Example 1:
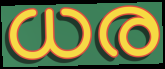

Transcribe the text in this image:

ധര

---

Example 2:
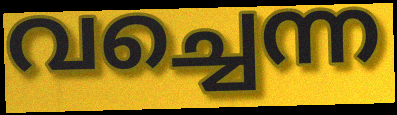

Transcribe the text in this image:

വച്ചെന്ന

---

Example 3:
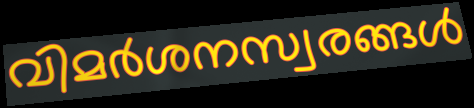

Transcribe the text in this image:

വിമർശനസ്വരങ്ങൾ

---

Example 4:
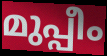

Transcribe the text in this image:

മുപ്പീം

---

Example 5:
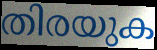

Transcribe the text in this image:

തിരയുക